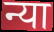
न्या